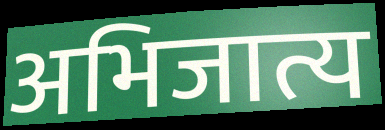
अभिजात्य